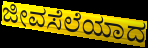
ಜೀವಸೆಲೆಯಾದ